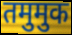
तमुमुक